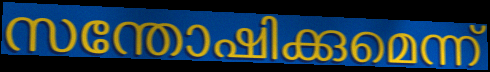
സന്തോഷിക്കുമെന്ന്